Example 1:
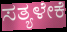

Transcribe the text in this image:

ಸತ್ಯಳೇಕೆ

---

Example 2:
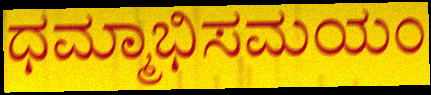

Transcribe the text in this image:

ಧಮ್ಮಾಭಿಸಮಯಂ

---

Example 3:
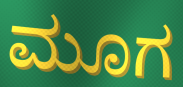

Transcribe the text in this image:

ಮೂಗ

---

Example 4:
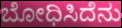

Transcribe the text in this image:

ಬೋಧಿಸಿದೆನು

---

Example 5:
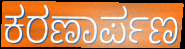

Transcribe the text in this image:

ಕರಣಾರ್ಪಣ